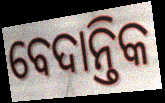
ବେଦାନ୍ତିକ